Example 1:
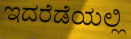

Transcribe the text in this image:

ಇದರೆಡೆಯಲ್ಲಿ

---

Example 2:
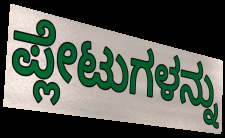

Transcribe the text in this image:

ಪ್ಲೇಟುಗಳನ್ನು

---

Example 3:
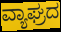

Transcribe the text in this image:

ವ್ಯಾಘ್ರದ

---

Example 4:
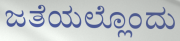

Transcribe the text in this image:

ಜತೆಯಲ್ಲೊಂದು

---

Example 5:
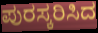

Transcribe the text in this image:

ಪುರಸ್ಕರಿಸಿದ